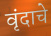
वृंदाचे